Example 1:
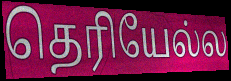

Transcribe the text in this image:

தெரியேல்ல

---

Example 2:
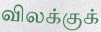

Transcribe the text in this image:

விலக்குக்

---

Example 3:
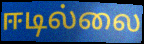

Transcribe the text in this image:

ஈடில்லை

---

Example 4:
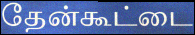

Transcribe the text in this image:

தேன்கூட்டை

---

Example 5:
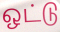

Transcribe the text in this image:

ஒட்டு